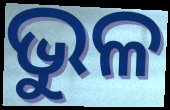
ଭୁଳ